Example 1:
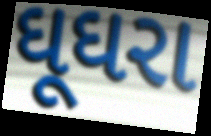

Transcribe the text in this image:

ઘૂઘરા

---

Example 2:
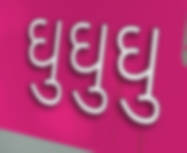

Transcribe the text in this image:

ઘુઘુઘુ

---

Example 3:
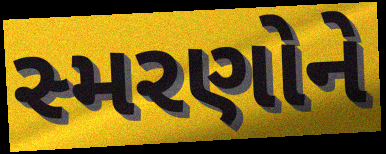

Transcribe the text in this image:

સ્મરણોને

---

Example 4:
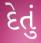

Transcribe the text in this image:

દેતું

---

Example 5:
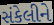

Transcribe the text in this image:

સંકેલીને